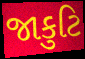
જાકુટિ